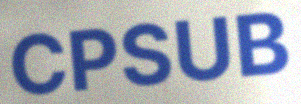
CPSUB